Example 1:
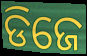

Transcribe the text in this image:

ଡିଜେ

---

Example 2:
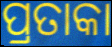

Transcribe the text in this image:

ପ୍ରତାକା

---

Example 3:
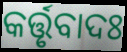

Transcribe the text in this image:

କର୍ତ୍ତୃବାଦଃ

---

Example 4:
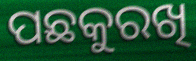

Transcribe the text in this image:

ପଛକୁରଖି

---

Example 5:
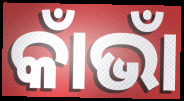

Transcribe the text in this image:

କାଁଭାଁ